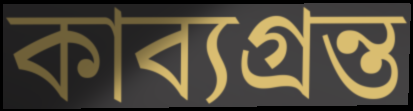
কাব্যগ্রন্ত